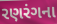
રણરંગના